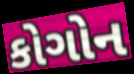
કોગોન